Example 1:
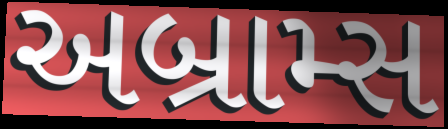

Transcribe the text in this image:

અબ્રામ્સ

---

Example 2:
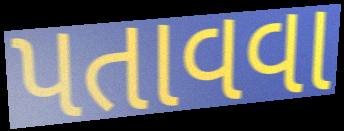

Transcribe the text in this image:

પતાવવા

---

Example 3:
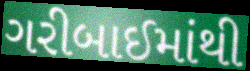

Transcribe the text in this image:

ગરીબાઈમાંથી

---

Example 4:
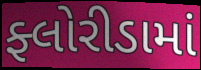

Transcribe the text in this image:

ફ્લોરીડામાં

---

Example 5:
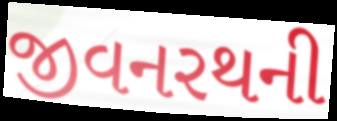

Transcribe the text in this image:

જીવનરથની